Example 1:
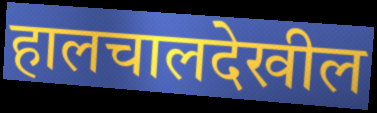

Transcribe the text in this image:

हालचालदेखील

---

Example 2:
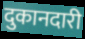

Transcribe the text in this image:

दुकानदारी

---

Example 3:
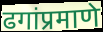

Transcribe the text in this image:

ढगांप्रमाणे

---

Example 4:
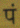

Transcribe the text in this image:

पं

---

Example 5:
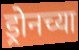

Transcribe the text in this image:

ड्रोनच्या